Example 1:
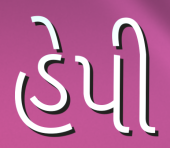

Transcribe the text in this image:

હેપી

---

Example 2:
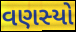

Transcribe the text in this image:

વણસ્યો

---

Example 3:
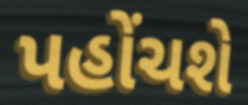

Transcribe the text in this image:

પહોંચશે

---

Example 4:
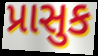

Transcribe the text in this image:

પ્રાસુક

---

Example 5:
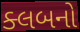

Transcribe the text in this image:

ક્લબનો